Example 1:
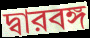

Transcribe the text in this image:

দ্বারবঙ্গ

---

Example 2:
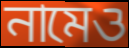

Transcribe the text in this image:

নামেও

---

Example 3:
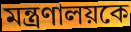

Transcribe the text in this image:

মন্ত্রণালয়কে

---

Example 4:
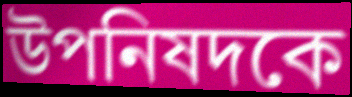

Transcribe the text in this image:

উপনিষদকে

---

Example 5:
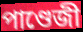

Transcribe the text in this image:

পাণ্ডেজী